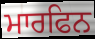
ਮਾਰਫਿਨ